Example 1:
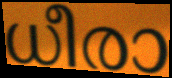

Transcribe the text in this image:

ധീരാ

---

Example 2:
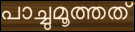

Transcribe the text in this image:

പാച്ചുമൂത്തത്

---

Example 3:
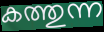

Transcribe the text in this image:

കത്തുന്ന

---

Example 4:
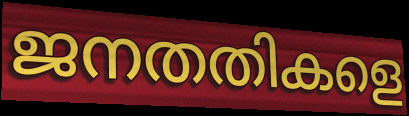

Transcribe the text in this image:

ജനതതികളെ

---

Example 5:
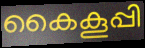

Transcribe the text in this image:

കൈകൂപ്പി